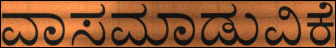
ವಾಸಮಾಡುವಿಕೆ